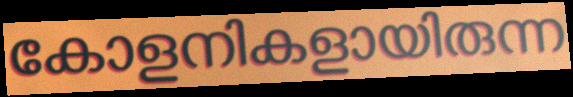
കോളനികളായിരുന്ന